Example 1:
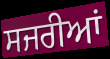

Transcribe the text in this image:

ਸਜਰੀਆਂ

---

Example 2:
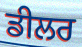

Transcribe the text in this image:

ਡੀਲਰ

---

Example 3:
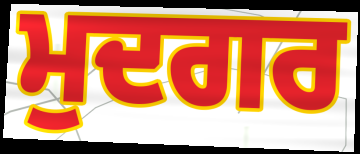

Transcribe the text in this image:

ਮੁਦਗਰ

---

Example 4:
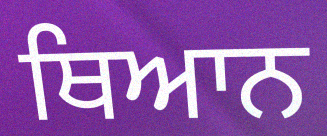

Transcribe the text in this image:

ਥਿਆਨ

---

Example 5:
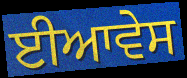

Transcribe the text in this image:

ਈਆਵੇਸ